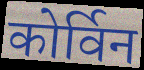
कोर्विन